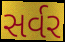
સર્વર